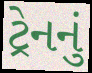
ટ્રેનનું